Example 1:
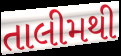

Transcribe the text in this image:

તાલીમથી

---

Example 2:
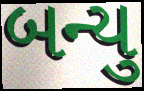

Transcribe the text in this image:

બન્યુ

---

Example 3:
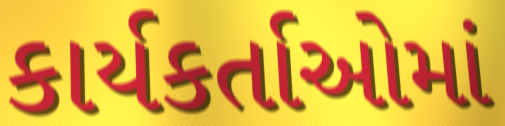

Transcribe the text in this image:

કાર્યકર્તાઓમાં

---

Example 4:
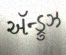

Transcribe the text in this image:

ઍન્ડ્રુઝ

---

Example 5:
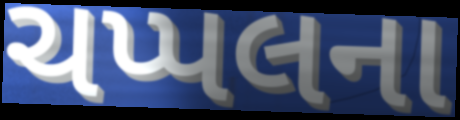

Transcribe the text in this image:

ચપ્પલના